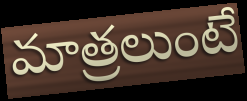
మాత్రలుంటే